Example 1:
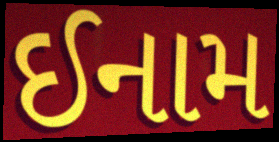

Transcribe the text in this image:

ઈનામ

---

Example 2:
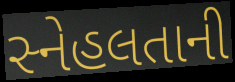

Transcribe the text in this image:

સ્નેહલતાની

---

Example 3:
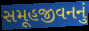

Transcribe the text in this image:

સમૂહજીવનનું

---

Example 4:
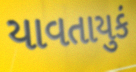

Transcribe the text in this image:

યાવતાયુકં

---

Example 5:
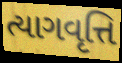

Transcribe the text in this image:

ત્યાગવૃત્તિ